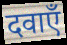
दवाएँ